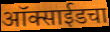
ऑक्साईडचा